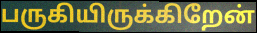
பருகியிருக்கிறேன்